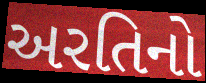
અરતિનો